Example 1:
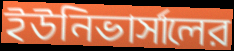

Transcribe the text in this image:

ইউনিভার্সালের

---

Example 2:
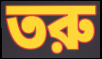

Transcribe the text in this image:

তরু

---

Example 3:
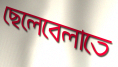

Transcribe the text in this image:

ছেলেবেলাতে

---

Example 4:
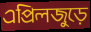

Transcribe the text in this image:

এপ্রিলজুড়ে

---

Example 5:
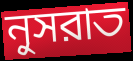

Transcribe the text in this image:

নুসরাত